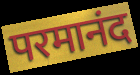
परमानंद